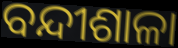
ବନ୍ଦୀଶାଳା